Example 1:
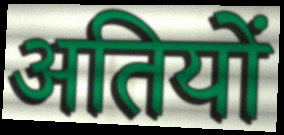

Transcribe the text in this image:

अतियों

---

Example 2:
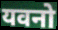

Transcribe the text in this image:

यवनो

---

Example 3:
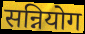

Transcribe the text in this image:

सन्नियोग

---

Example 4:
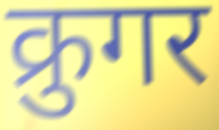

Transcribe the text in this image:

क्रुगर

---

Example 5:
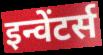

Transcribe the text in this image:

इन्वेंटर्स